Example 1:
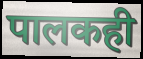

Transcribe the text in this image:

पालकही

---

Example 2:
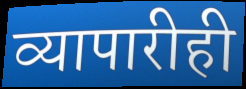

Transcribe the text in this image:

व्यापारीही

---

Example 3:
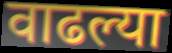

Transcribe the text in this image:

वाढल्या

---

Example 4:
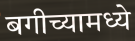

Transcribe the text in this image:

बगीच्यामध्ये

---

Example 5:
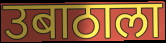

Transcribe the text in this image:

उबाठाला